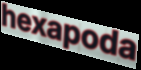
hexapoda